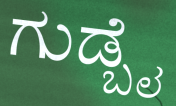
ಗುಡ್ಬೈ